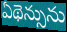
ఏథెన్సును